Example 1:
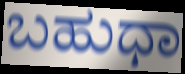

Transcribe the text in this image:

ಬಹುಧಾ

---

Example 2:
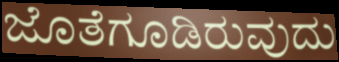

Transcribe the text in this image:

ಜೊತೆಗೂಡಿರುವುದು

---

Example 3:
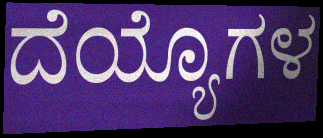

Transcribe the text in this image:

ದೆಯ್ಯೊಗಳ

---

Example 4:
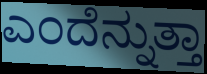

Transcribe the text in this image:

ಎಂದೆನ್ನುತ್ತಾ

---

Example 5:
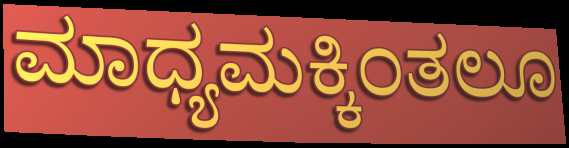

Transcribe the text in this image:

ಮಾಧ್ಯಮಕ್ಕಿಂತಲೂ